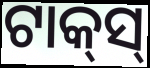
ଟାକ୍‍ସ୍